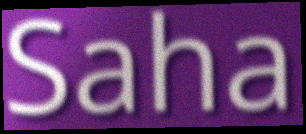
Saha